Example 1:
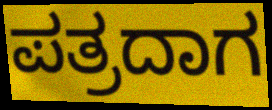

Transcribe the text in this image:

ಪತ್ರದಾಗ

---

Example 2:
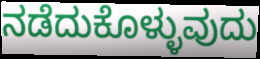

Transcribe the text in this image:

ನಡೆದುಕೊಳ್ಳುವುದು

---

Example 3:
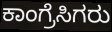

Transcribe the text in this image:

ಕಾಂಗ್ರೆಸಿಗರು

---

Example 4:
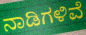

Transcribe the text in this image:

ನಾಡಿಗಳಿವೆ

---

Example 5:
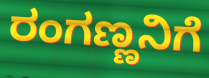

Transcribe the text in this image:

ರಂಗಣ್ಣನಿಗೆ